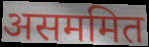
असममित